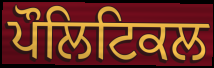
ਪੌਲਿਟਿਕਲ